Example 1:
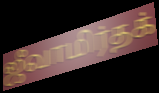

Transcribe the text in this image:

ஜீவாமிர்தக்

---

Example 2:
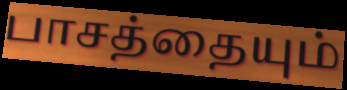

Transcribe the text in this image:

பாசத்தையும்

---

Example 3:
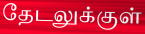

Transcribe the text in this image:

தேடலுக்குள்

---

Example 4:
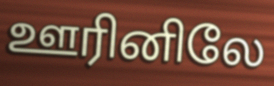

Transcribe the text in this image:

ஊரினிலே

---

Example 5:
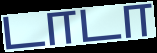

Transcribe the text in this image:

டாடா